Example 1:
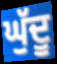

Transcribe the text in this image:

ਘੁੱਦੂ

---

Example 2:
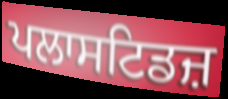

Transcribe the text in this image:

ਪਲਾਸਟਿਡਜ਼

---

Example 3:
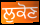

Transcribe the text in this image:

ਲੁਕੋਣ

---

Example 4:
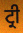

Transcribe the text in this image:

ਟ੍ਰੀ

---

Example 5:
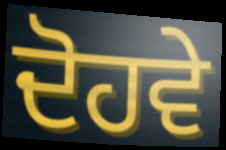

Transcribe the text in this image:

ਦੋਹਵੇ